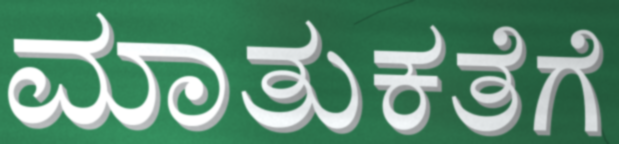
ಮಾತುಕತೆಗೆ